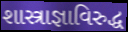
શાસ્ત્રાજ્ઞાવિરુદ્ધ